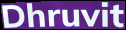
Dhruvit